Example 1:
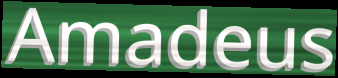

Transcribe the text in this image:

Amadeus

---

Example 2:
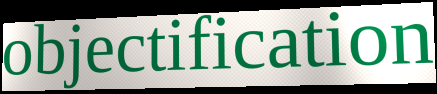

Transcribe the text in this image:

objectification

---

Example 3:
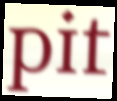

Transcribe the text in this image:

pit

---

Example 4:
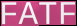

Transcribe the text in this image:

FATF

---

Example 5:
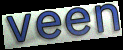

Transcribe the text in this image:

veen